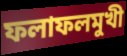
ফলাফলমুখী